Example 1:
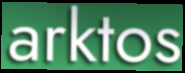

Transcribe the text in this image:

arktos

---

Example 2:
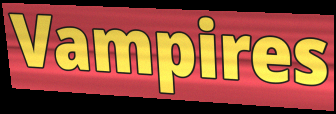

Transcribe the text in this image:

Vampires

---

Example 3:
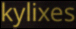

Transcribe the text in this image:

kylixes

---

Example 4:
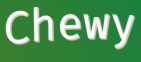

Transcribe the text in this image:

Chewy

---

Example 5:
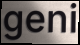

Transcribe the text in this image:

geni